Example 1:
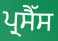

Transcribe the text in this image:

ਪ੍ਰਸੈੱਸ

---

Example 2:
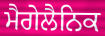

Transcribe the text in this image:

ਮੈਗੇਲੈਨਿਕ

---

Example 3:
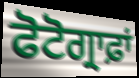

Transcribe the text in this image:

ਫੋਟੋਗ੍ਰਾਫ਼ਾਂ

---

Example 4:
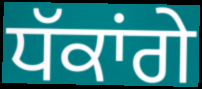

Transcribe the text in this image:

ਧੱਕਾਂਗੇ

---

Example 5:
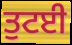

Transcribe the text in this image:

ਤੁਟਈ